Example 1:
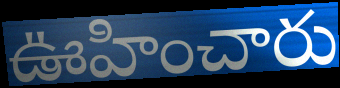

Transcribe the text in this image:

ఊహించారు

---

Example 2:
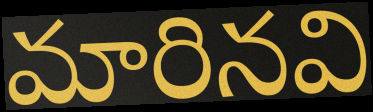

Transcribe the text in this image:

మారినవి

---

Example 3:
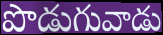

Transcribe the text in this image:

పొడుగువాడు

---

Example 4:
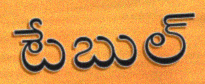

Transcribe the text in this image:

టేబుల్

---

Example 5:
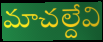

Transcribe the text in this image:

మాచల్దేవి